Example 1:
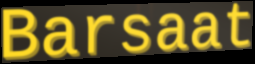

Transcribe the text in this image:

Barsaat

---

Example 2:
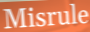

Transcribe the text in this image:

Misrule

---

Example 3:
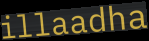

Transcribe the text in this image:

illaadha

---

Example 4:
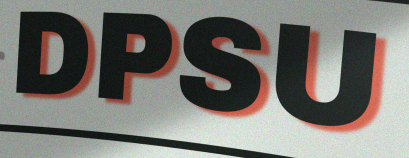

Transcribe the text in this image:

DPSU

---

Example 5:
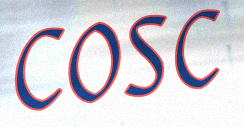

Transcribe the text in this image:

COSC